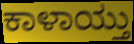
ಕಾಳಾಯ್ತು